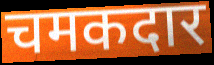
चमकदार